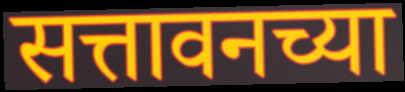
सत्तावनच्या